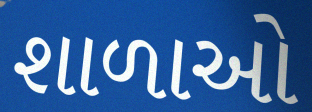
શાળાઓ